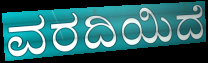
ವರದಿಯಿದೆ